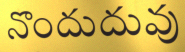
నొందుదువు